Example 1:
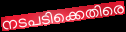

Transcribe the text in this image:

നടപടിക്കെതിരെ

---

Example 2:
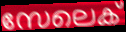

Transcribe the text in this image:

സേലെക്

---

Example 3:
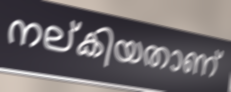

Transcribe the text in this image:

നല്കിയതാണ്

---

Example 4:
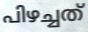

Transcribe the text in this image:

പിഴച്ചത്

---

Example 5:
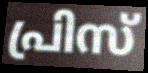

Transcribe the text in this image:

പ്രിസ്